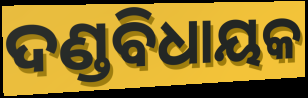
ଦଣ୍ଡବିଧାୟକ